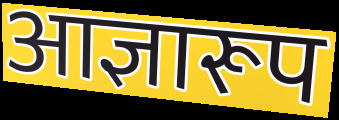
आज्ञारूप